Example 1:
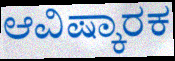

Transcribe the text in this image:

ಆವಿಷ್ಕಾರಕ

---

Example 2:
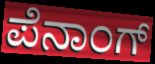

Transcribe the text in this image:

ಪೆನಾಂಗ್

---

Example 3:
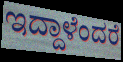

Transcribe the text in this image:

ಇದ್ದಾಳೆಂದರೆ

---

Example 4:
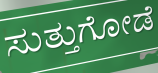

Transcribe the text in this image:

ಸುತ್ತುಗೋಡೆ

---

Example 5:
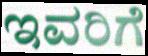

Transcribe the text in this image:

ಇವರಿಗೆ